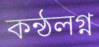
কন্ঠলগ্ন